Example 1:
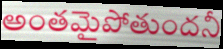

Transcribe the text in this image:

అంతమైపోతుందనీ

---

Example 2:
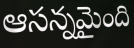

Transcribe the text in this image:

ఆసన్నమైంది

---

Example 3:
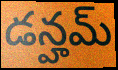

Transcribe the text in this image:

డన్హమ్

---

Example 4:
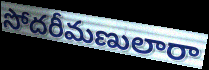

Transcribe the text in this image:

సోదరీమణులారా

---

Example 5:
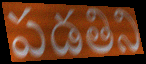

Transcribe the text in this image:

పడతిని